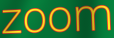
zoom